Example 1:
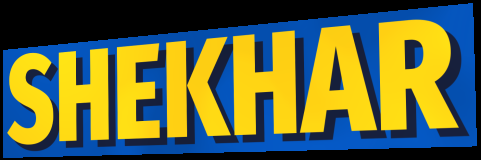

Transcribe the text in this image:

SHEKHAR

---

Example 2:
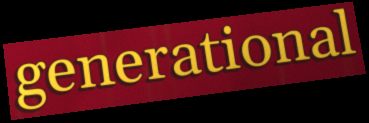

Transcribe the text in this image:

generational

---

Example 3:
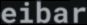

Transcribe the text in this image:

eibar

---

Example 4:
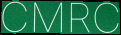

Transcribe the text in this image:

CMRC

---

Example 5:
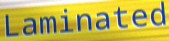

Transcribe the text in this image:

Laminated